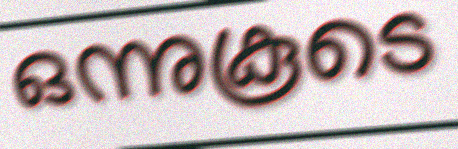
ഒന്നുകൂടെ